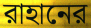
রাহানের